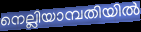
നെല്ലിയാമ്പതിയിൽ